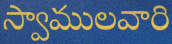
స్వాములవారి